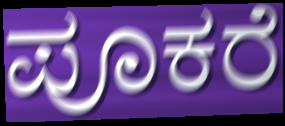
ಪೂಕರೆ